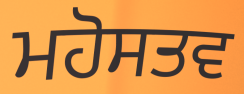
ਮਹੋਸਤਵ